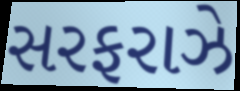
સરફરાઝે